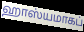
ஹாஸ்யமாகப்